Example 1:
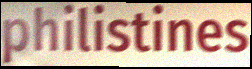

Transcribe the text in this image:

philistines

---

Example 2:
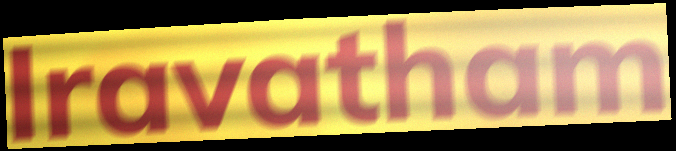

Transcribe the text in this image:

Iravatham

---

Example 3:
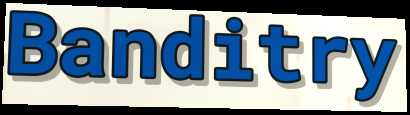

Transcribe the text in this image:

Banditry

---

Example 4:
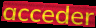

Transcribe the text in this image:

acceder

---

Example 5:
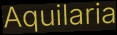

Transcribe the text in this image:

Aquilaria